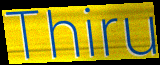
Thiru